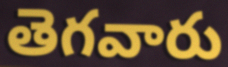
తెగవారు